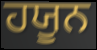
ਹਯੂਨ